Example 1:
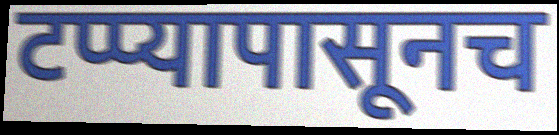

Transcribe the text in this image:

टप्प्यापासूनच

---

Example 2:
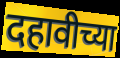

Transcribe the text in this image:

दहावीच्या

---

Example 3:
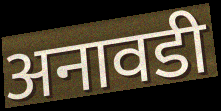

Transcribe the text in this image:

अनावडी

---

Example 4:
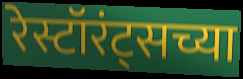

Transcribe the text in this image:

रेस्टॉरंट्सच्या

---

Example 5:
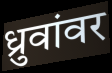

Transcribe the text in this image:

ध्रुवांवर